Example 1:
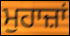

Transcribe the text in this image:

ਮੁਹਾਜ਼ਾਂ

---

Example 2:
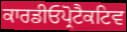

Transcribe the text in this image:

ਕਾਰਡੀਓਪ੍ਰੋਟੈਕਟਿਵ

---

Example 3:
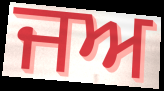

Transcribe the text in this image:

ਜਅ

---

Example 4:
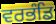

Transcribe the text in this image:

ਵਰਭੰਡਿ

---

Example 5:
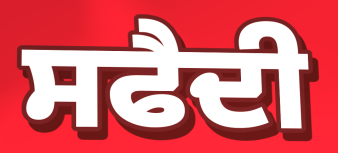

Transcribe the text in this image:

ਸਫੈਦੀ